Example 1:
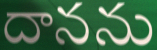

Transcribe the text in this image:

దానను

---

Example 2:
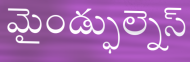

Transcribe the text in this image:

మైండ్ఫుల్నెస్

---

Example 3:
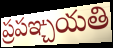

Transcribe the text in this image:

ప్రపఞ్చయతి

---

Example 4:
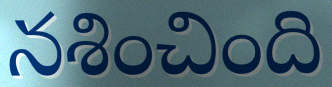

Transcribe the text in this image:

నశించింది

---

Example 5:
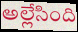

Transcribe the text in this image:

అల్లేసింది